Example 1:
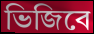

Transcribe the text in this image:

ভিজিবে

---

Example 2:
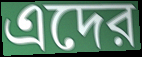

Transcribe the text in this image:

এদের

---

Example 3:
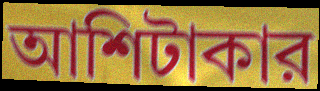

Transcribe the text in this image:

আশিটাকার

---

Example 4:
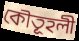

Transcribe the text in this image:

কৌতূহলী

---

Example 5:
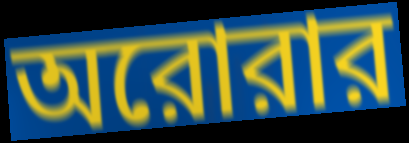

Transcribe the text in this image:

অরোরার